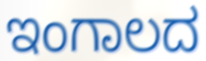
ಇಂಗಾಲದ